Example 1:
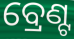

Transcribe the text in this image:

ବ୍ରେଣ୍ଟ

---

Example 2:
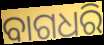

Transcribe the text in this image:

ବାଗଧରି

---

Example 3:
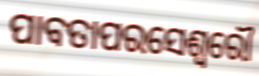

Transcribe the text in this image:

ପାବତାପରସେଶ୍ୱରୌ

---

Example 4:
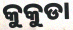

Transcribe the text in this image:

କୁକୁଡା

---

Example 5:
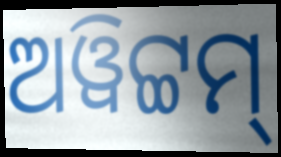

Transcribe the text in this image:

ଅୱିଟ୍ଟମ୍